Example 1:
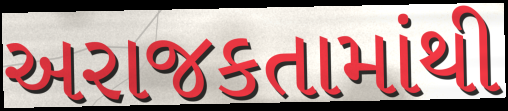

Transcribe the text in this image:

અરાજકતામાંથી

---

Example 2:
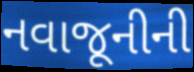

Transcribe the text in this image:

નવાજૂનીની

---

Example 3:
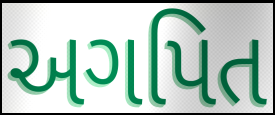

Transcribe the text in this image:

અગપિત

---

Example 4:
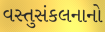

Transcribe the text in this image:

વસ્તુસંકલનાનો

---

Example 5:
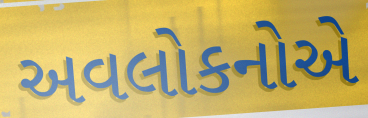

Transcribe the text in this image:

અવલોકનોએ